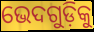
ଭେଦଗୁଡ଼ିକୁ